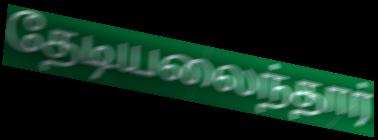
தேடியலைந்தார்